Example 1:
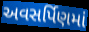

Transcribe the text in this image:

અવસર્પિણમાં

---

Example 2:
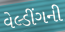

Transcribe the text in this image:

વેલ્ડીંગની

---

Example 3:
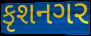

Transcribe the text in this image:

કૃશનગર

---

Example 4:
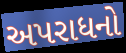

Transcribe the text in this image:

અપરાધનો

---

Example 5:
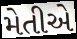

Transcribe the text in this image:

મેતીએ